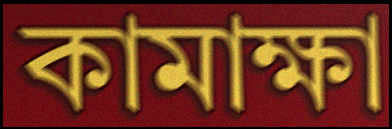
কামাক্ষা